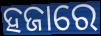
ହଜାରେ